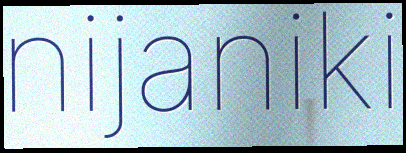
nijaniki